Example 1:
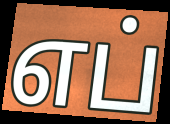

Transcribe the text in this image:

எப்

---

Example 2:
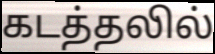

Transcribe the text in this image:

கடத்தலில்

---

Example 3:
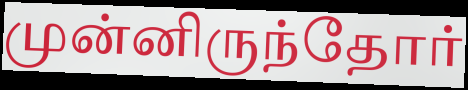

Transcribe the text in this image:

முன்னிருந்தோர்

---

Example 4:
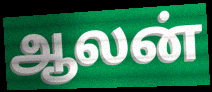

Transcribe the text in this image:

ஆலன்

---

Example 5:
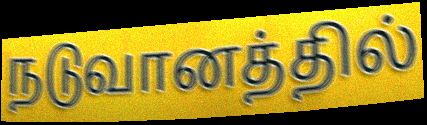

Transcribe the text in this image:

நடுவானத்தில்